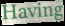
Having